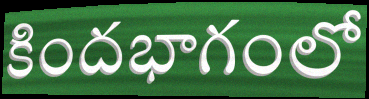
కిందభాగంలో